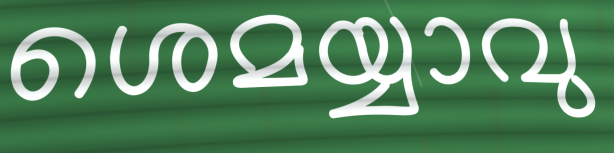
ശെമയ്യാവു